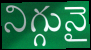
నిగ్గునై